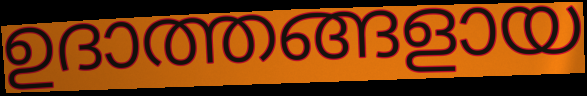
ഉദാത്തങ്ങളായ